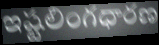
ఇష్టలింగధారణ